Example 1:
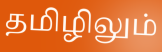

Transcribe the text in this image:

தமிழிலும்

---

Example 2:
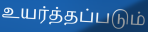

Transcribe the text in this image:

உயர்த்தப்படும்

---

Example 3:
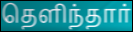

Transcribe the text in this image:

தெளிந்தார்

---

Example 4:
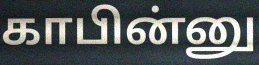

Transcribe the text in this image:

காபின்னு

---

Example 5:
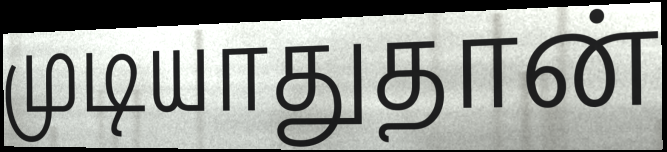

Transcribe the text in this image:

முடியாதுதான்